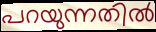
പറയുന്നതിൽ